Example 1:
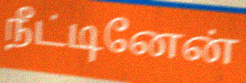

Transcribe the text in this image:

நீட்டினேன்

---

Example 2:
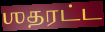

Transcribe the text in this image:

ஶதரட்ட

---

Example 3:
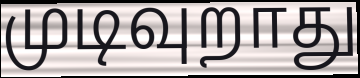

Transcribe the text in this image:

முடிவுறாது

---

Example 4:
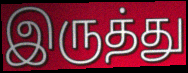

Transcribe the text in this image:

இருத்து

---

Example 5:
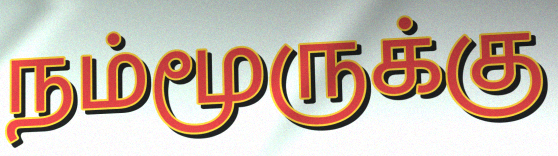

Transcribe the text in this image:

நம்மூருக்கு